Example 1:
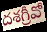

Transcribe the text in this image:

దశగ్రీవో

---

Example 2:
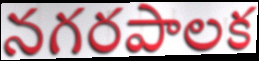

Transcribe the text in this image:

నగరపాలక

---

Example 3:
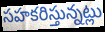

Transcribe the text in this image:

సహకరిస్తున్నట్లు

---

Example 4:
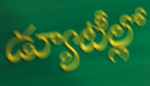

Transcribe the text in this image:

డ్యూటీల్లో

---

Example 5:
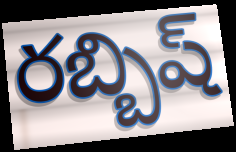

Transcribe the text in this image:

రబ్బిష్